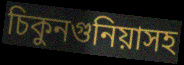
চিকুনগুনিয়াসহ